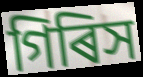
গিৰিস